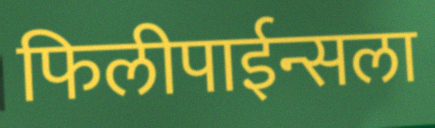
फिलीपाईन्सला